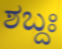
ಶಬ್ದಃ